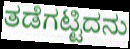
ತಡೆಗಟ್ಟಿದನು